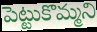
పెట్టుకొమ్మని